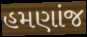
હમણાંજ